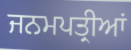
ਜਨਮਪਤ੍ਰੀਆਂ